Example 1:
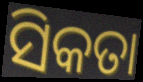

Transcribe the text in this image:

ସିକତା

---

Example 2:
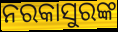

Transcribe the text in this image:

ନରକାସୁରଙ୍କ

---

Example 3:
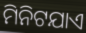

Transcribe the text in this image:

ମିନିଟଯାଏ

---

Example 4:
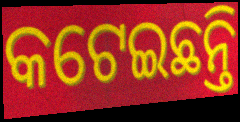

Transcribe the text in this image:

କଟେଇଛନ୍ତି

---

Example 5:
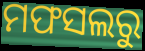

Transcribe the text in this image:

ମଫସଲରୁ